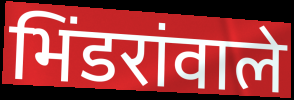
भिंडरांवाले